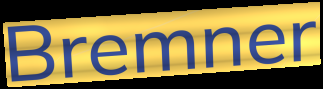
Bremner